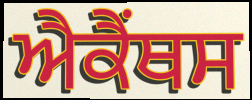
ਐਕੈਂਥਸ